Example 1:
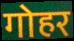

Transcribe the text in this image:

गोहर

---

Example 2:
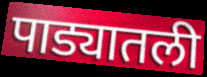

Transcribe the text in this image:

पाड्यातली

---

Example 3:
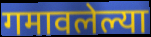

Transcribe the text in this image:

गमावलेल्या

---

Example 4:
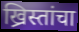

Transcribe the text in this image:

ख्रिस्तांचा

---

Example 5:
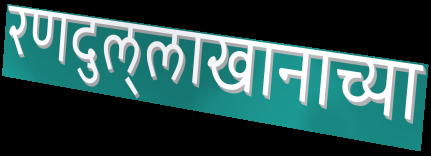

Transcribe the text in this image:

रणदुल्लाखानाच्या